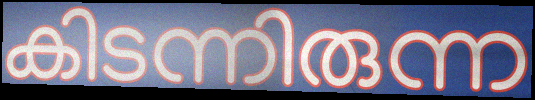
കിടന്നിരുന്ന